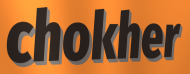
chokher